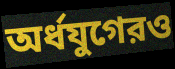
অর্ধযুগেরও